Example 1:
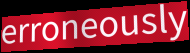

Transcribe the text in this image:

erroneously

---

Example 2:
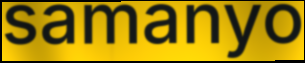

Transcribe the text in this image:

samanyo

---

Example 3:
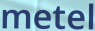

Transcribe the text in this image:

metel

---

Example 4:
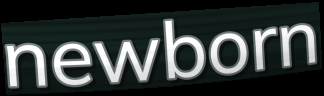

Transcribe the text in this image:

newborn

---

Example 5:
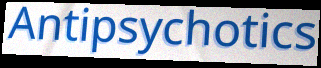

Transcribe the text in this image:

Antipsychotics